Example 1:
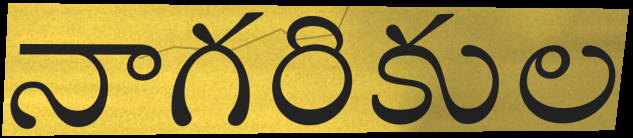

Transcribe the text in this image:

నాగరికుల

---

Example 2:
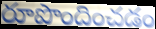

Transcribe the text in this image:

రూపొందించడం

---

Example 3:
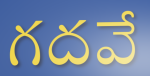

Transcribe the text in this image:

గదవే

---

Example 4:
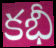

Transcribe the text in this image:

కభీ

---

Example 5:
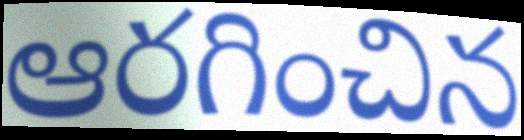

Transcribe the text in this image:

ఆరగించిన